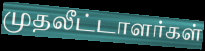
முதலீட்டாளர்கள்